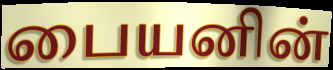
பையனின்